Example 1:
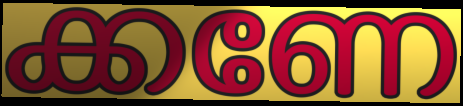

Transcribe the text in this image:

ക്കണേ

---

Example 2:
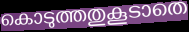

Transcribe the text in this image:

കൊടുത്തതുകൂടാതെ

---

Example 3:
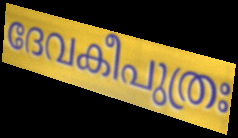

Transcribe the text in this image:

ദേവകീപുത്രഃ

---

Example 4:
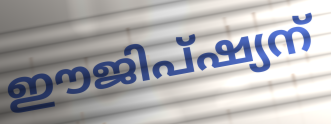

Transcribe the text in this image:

ഈജിപ്ഷ്യന്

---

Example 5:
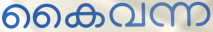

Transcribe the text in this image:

കൈവന്ന